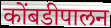
कोंबडीपालन